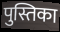
पुस्तिका